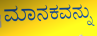
ಮಾನಕವನ್ನು